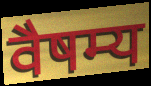
वैषम्य